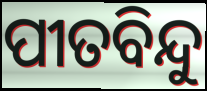
ପୀତବିନ୍ଦୁ